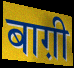
बाग़ी